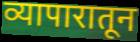
व्यापारातून